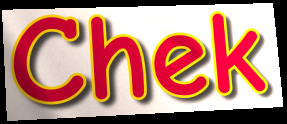
Chek